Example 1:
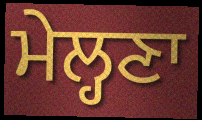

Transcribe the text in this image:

ਮੇਲ੍ਹਣਾ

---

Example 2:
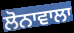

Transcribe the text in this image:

ਲੋਨਾਵਾਲਾ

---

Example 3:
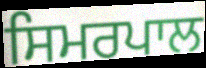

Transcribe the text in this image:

ਸਿਮਰਪਾਲ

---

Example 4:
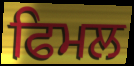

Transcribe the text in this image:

ਫਿਮਲ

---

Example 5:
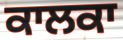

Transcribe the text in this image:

ਕਾਲਕਾ